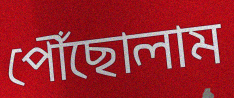
পৌঁছোলাম